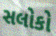
સલોકો